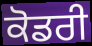
ਕੋਡਰੀ